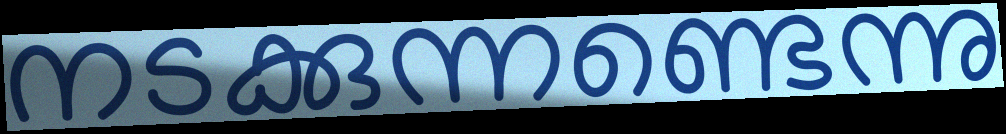
നടക്കുന്നണ്ടെന്നു